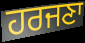
ਹਰਜਣਾ